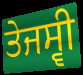
ਤੇਜਸ੍ਵੀ